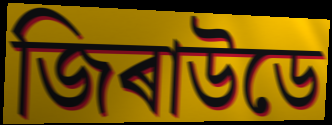
জিৰাউডে